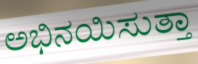
ಅಭಿನಯಿಸುತ್ತಾ